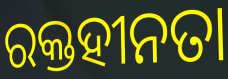
ରକ୍ତହୀନତା